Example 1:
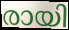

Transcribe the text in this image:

രായി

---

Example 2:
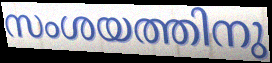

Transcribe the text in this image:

സംശയത്തിനു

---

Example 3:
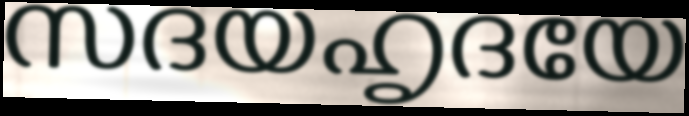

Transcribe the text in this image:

സദയഹൃദയേ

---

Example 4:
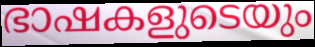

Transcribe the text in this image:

ഭാഷകളുടെയും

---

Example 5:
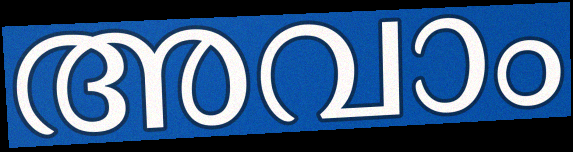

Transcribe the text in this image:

അവാം